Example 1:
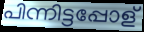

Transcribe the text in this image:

പിന്നിട്ടപ്പോള്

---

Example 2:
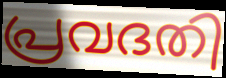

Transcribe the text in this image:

പ്രവദതി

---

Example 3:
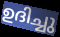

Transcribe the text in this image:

ഉദിച്ചു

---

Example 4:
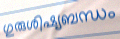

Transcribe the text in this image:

ഗുരുശിഷ്യബന്ധം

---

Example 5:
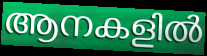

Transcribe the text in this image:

ആനകളിൽ